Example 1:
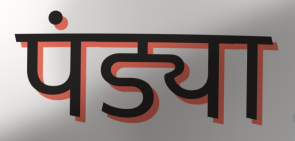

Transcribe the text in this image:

पंड्या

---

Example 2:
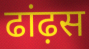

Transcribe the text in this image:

ढांढ़स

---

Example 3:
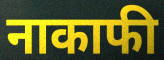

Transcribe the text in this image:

नाकाफी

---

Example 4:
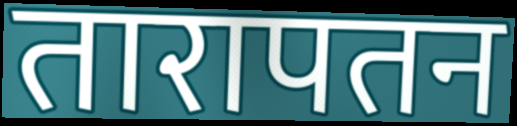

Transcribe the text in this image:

तारापतन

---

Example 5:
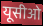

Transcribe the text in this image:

यूसीओ